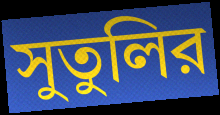
সুতুলির